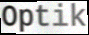
Optik